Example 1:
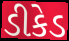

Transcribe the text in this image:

ડીકેડ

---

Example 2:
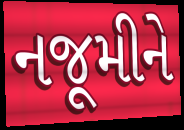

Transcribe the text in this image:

નજૂમીને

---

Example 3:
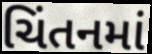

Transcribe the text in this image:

ચિંતનમાં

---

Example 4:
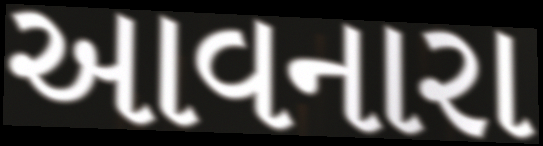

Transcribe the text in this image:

આવનારા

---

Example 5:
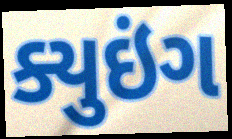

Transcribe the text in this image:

ક્યુઇંગ